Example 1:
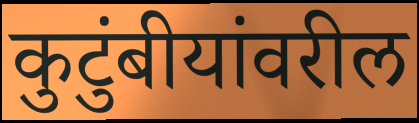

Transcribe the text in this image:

कुटुंबीयांवरील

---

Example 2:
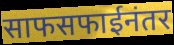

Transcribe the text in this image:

साफसफाईनंतर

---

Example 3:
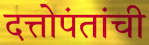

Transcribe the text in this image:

दत्तोपंतांची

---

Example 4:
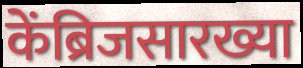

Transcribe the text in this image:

केंब्रिजसारख्या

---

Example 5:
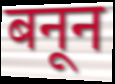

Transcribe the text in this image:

बनून